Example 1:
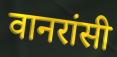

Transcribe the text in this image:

वानरांसी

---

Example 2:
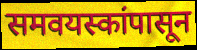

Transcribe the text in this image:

समवयस्कांपासून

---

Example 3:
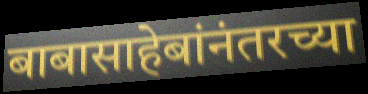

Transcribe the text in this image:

बाबासाहेबांनंतरच्या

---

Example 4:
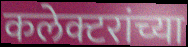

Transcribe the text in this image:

कलेक्टरांच्या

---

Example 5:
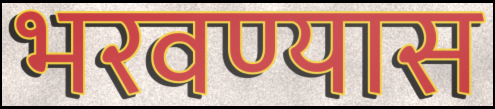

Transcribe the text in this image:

भरवण्यास